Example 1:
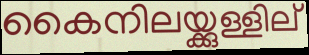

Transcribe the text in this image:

കൈനിലയ്ക്കുള്ളില്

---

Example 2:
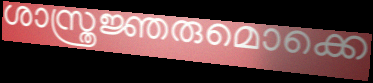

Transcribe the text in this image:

ശാസ്ത്രജ്ഞരുമൊക്കെ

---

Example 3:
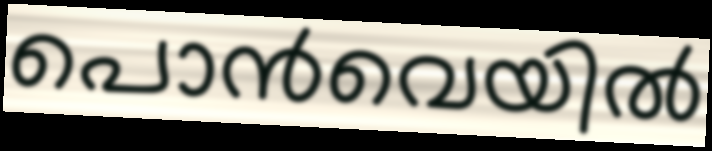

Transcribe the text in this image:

പൊൻവെയിൽ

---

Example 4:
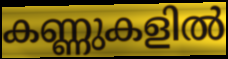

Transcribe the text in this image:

കണ്ണുകളിൽ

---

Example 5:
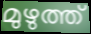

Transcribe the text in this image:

മുഴുത്ത്